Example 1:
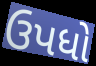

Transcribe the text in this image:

ઉપધો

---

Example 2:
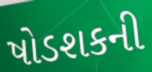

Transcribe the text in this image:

ષોડશકની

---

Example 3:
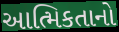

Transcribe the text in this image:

આત્મિકતાનો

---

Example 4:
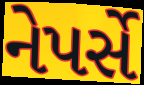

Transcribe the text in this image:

નેપર્સે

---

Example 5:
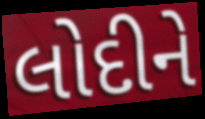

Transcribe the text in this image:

લોદીને